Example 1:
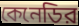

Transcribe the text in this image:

কেনেডির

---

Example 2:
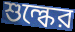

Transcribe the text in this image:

শুল্কের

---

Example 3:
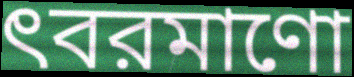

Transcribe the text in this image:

ৎবরমাণো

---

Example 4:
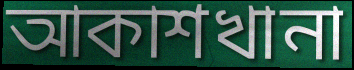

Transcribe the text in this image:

আকাশখানা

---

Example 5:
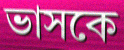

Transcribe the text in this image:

ভাসকে